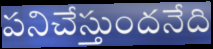
పనిచేస్తుందనేది